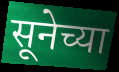
सूनेच्या